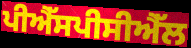
ਪੀਐੱਸਪੀਸੀਐੱਲ